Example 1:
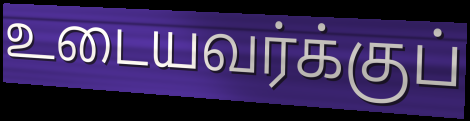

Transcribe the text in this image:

உடையவர்க்குப்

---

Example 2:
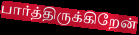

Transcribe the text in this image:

பார்த்திருக்கிறேன்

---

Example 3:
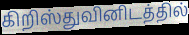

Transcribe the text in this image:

கிறிஸ்துவினிடத்தில்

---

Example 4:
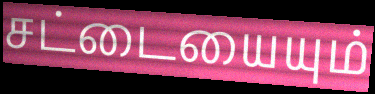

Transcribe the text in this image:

சட்டையையும்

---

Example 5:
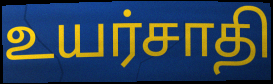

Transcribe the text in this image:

உயர்சாதி